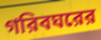
গরিবঘরের